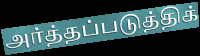
அர்த்தப்படுத்திக்